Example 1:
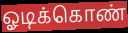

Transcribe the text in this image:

ஓடிக்கொண்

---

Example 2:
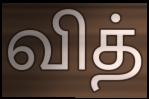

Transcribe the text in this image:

வித்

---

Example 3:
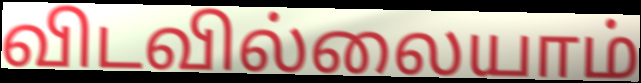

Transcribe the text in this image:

விடவில்லையாம்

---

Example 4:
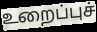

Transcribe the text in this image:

உறைப்புச்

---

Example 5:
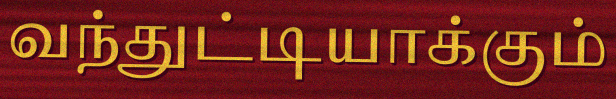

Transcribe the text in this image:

வந்துட்டியாக்கும்